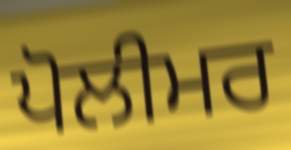
ਪੋਲੀਮਰ